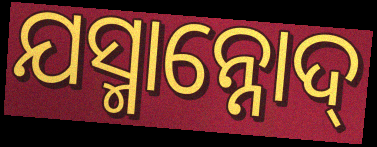
ଯସ୍ମାନ୍ନୋଦ୍